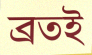
ব্রতই